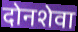
दोनशेवा